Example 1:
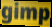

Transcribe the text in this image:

gimp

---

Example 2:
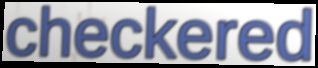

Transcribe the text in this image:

checkered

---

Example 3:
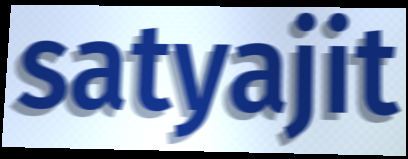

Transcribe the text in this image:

satyajit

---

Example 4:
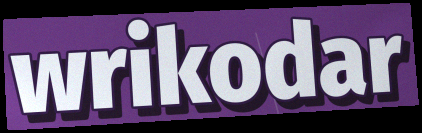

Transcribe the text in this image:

wrikodar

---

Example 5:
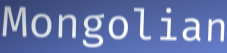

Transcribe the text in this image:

Mongolian